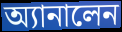
অ্যানালেন